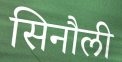
सिनौली